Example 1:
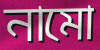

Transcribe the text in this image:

নামো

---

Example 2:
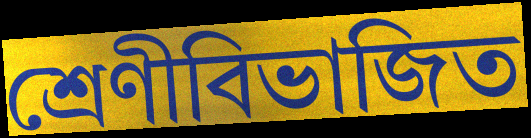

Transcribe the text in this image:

শ্রেণীবিভাজিত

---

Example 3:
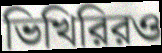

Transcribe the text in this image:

ভিখিরিরও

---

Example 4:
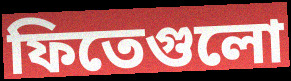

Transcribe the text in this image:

ফিতেগুলো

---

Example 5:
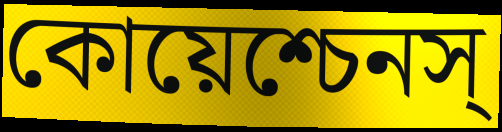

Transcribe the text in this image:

কোয়েশ্চেনস্